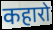
कहारो